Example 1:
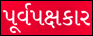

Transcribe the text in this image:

પૂર્વપક્ષકાર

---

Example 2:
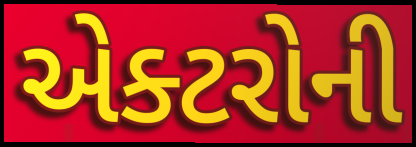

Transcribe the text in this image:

એક્ટરોની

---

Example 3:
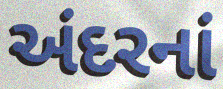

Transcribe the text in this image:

અંદરનાં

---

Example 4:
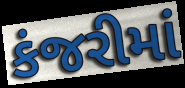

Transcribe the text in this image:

કંજરીમાં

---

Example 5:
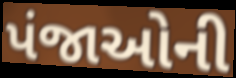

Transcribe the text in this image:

પંજાઓની